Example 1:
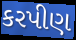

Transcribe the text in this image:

કરપીણ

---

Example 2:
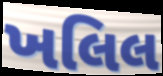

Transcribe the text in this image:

ખલિલ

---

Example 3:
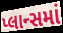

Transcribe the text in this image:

પ્લાન્સમાં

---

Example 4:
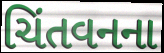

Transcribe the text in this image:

ચિંતવનના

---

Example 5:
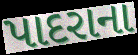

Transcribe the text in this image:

પાદરાના